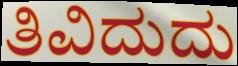
ತಿವಿದುದು